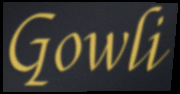
Gowli